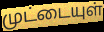
முட்டையுள்